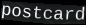
postcard